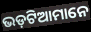
ଭଡ଼ଟିଆମାନେ